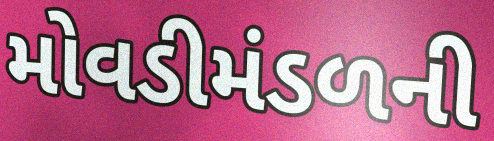
મોવડીમંડળની